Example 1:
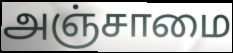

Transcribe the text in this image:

அஞ்சாமை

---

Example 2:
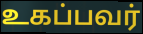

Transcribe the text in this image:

உகப்பவர்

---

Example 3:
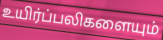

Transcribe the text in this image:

உயிர்ப்பலிகளையும்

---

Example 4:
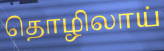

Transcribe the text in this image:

தொழிலாய்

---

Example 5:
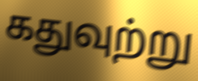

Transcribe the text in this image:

கதுவுற்று